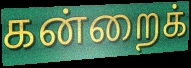
கன்றைக்